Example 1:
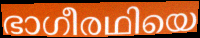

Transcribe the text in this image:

ഭാഗീരഥിയെ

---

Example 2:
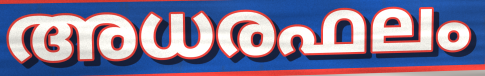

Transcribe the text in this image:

അധരഫലം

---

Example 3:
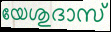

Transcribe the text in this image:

യേശുദാസ്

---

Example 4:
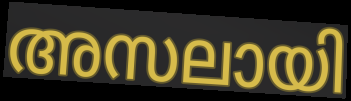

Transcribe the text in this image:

അസലായി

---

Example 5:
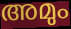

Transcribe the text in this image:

അമും